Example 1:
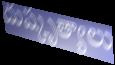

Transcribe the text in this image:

దుష్కృత్యాలు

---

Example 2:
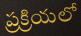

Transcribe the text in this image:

ప్రక్రియలో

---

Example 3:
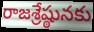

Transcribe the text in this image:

రాజశ్రేష్ఠునకు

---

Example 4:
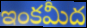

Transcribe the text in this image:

ఇంకమీద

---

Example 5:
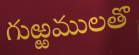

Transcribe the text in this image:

గుఱ్ఱములతొ